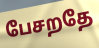
பேசறதே